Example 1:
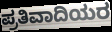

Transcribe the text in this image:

ಪ್ರತಿವಾದಿಯರ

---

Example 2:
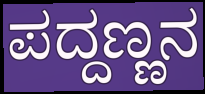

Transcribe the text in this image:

ಪದ್ದಣ್ಣನ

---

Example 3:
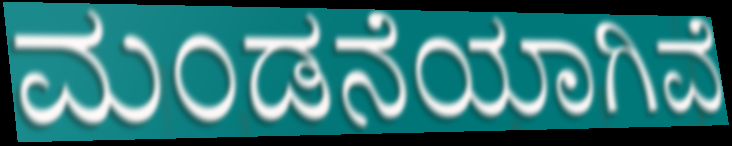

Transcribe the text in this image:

ಮಂಡನೆಯಾಗಿವೆ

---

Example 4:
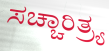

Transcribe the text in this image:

ಸಚ್ಚಾರಿತ್ರ್ಯ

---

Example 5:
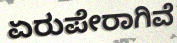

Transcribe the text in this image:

ಏರುಪೇರಾಗಿವೆ